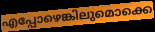
എപ്പോഴെങ്കിലുമൊക്കെ